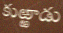
కుఱ్ఱాడు